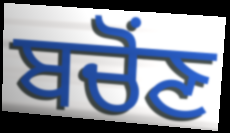
ਬਚੋਂਣ